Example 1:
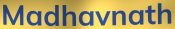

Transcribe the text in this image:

Madhavnath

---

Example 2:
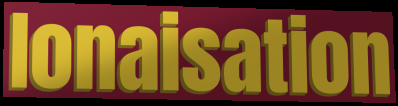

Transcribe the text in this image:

Ionaisation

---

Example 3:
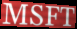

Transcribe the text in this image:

MSFT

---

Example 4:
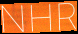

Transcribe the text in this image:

NHR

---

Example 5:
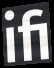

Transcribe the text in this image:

ifi